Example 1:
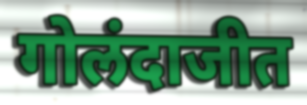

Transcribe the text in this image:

गोलंदाजीत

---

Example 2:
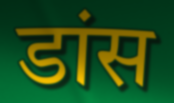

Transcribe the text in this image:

डांस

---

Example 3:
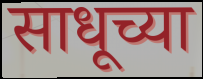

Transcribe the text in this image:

साधूच्या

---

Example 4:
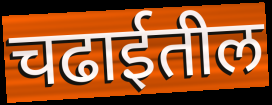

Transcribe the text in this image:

चढाईतील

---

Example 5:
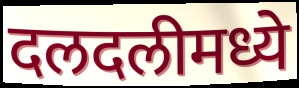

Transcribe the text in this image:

दलदलीमध्ये